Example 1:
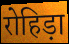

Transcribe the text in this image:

रोहिड़ा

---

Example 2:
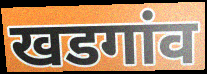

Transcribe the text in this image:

खडगांव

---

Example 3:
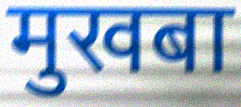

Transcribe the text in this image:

मुखबा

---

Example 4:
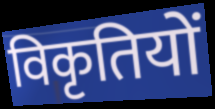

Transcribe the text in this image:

विकृतियों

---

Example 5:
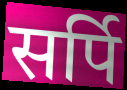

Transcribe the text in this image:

सर्पि